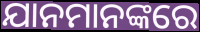
ଯାନମାନଙ୍କରେ